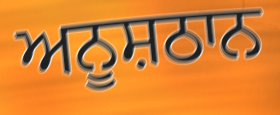
ਅਨੂਸ਼ਠਾਨ